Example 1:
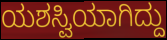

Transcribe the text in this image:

ಯಶಸ್ವಿಯಾಗಿದ್ದು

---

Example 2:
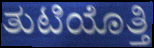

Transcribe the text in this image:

ತುಟಿಯೊತ್ತಿ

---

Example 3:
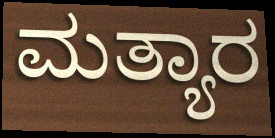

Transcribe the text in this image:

ಮತ್ಯಾರ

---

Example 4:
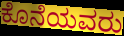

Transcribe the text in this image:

ಕೊನೆಯವರು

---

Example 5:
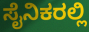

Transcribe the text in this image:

ಸೈನಿಕರಲ್ಲಿ